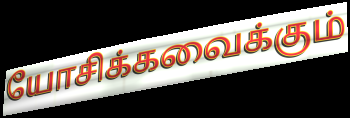
யோசிக்கவைக்கும்